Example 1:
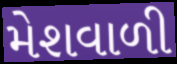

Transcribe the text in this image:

મેશવાળી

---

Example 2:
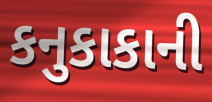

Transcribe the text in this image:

કનુકાકાની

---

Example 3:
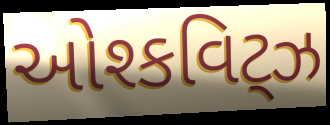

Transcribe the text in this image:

ઓશ્કવિટ્ઝ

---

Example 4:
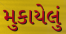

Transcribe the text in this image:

મુકાયેલું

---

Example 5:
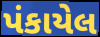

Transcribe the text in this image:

પંકાયેલ